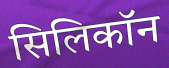
सिलिकॉन